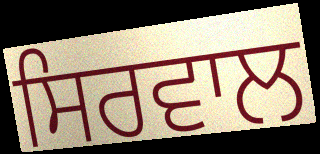
ਸਿਰਵਾਲ